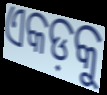
ଏକଡ଼କୁ